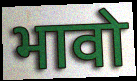
भावो